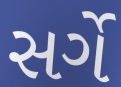
સર્ગે